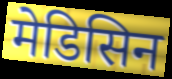
मेडिसिन